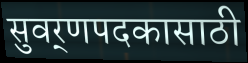
सुवर्णपदकासाठी